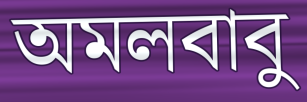
অমলবাবু